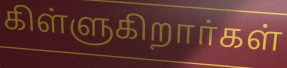
கிள்ளுகிறார்கள்